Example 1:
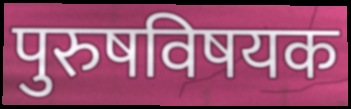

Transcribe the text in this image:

पुरुषविषयक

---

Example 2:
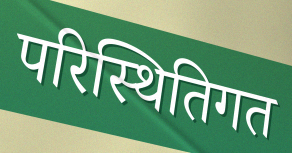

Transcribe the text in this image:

परिस्थितिगत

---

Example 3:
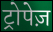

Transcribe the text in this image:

ट्रोपेज़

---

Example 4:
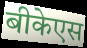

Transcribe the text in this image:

बीकेएस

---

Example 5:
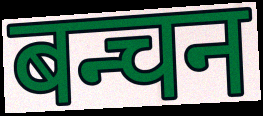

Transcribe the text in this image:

बन्चन